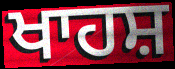
ਖਾਹਸ਼